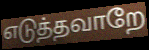
எடுத்தவாறே